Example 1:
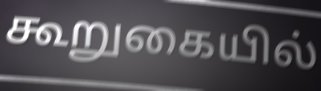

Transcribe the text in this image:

கூறுகையில்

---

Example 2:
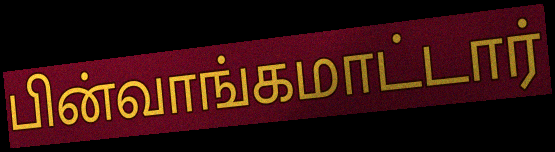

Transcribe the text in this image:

பின்வாங்கமாட்டார்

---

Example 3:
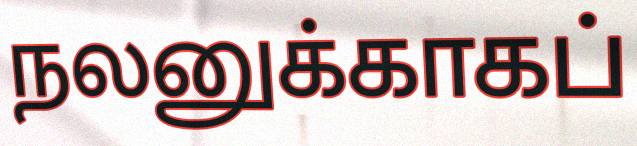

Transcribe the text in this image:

நலனுக்காகப்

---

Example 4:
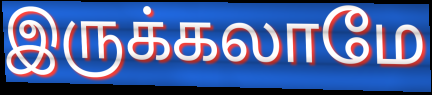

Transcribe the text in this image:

இருக்கலாமே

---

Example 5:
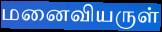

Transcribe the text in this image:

மனைவியருள்